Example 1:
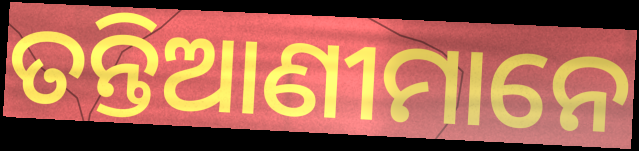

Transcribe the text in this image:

ତନ୍ତିଆଣୀମାନେ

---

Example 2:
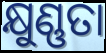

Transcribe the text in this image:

କ୍ଷୁଣ୍ଣତା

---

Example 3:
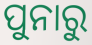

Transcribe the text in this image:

ପୁନାରୁ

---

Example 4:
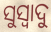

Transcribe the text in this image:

ସୁସ୍ଵାଦୁ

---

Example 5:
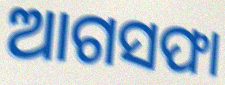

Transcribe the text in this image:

ଆଗସଫା